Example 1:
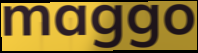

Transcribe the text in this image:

maggo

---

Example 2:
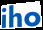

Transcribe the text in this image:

iho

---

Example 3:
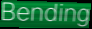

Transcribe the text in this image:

Bending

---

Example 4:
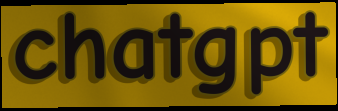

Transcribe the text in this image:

chatgpt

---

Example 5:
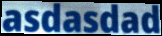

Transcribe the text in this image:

asdasdad